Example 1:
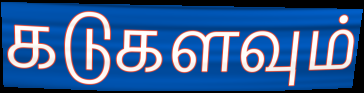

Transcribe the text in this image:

கடுகளவும்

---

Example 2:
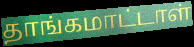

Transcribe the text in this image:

தாங்கமாட்டாள்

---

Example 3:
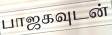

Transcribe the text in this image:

பாஜகவுடன்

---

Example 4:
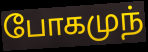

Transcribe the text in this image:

போகமுந்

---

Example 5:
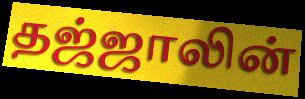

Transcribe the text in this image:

தஜ்ஜாலின்